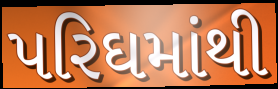
પરિઘમાંથી